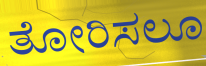
ತೋರಿಸಲೂ